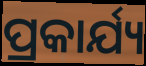
ପ୍ରକାର୍ଯ୍ୟ